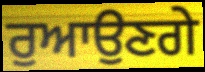
ਰੁਆਉਣਗੇ